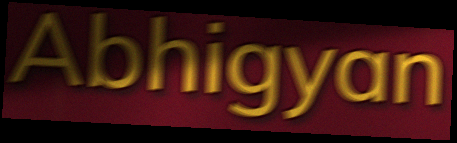
Abhigyan